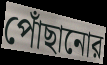
পোঁছানোর